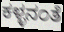
ಕಳ್ಳನಂತೆ